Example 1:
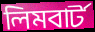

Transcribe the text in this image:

লিমবার্ট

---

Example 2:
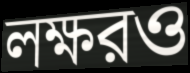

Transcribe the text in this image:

লক্ষরও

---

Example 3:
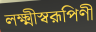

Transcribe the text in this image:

লক্ষ্মীস্বরূপিণী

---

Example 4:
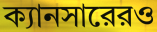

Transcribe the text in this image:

ক্যানসারেরও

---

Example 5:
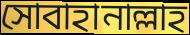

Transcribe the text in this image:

সোবাহানাল্লাহ